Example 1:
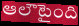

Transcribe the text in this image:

ఆలౌటైంది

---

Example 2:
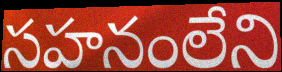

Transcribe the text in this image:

సహనంలేని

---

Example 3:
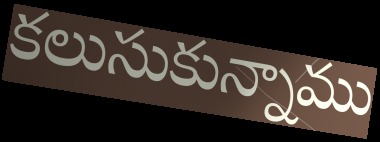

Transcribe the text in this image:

కలుసుకున్నాము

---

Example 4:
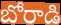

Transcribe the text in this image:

బోరాడి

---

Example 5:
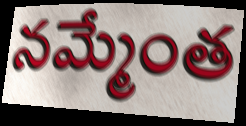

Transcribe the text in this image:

నమ్మేంత